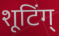
शूटिंग्